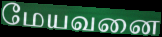
மேயவனை